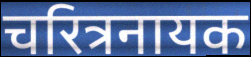
चरित्रनायक